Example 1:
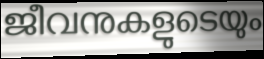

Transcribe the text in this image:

ജീവനുകളുടെയും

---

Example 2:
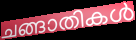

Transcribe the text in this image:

ചങ്ങാതികൾ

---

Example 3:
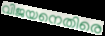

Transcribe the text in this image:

വിജയനെതിരെ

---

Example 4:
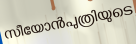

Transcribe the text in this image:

സീയോൻപുത്രിയുടെ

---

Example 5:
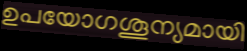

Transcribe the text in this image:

ഉപയോഗശൂന്യമായി